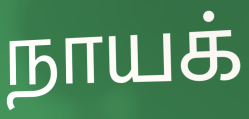
நாயக்